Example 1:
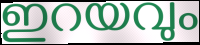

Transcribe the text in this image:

ഇറയവും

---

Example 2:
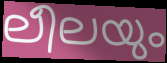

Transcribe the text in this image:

ലീലയും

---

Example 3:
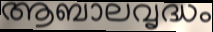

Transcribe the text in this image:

ആബാലവൃദ്ധം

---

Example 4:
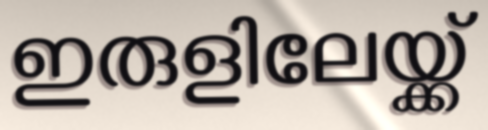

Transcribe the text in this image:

ഇരുളിലേയ്ക്ക്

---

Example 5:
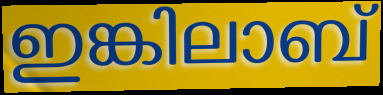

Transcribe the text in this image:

ഇങ്കിലാബ്